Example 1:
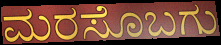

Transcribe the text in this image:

ಮರಸೊಬಗು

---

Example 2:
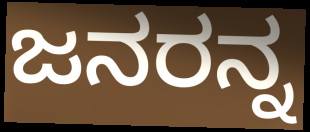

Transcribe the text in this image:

ಜನರನ್ನ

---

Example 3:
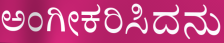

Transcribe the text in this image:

ಅಂಗೀಕರಿಸಿದನು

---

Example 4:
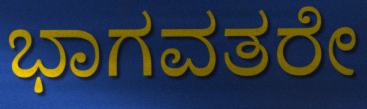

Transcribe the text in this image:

ಭಾಗವತರೇ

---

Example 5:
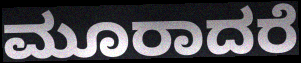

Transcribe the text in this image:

ಮೂರಾದರೆ